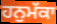
ਹਨੁਮੱਕਾ